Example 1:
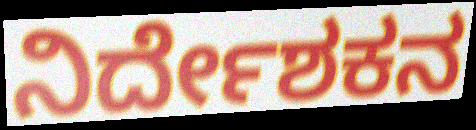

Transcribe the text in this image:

ನಿರ್ದೇಶಕನ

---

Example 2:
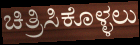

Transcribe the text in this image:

ಚಿತ್ರಿಸಿಕೊಳ್ಳಲು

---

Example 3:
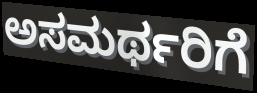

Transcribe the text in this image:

ಅಸಮರ್ಥರಿಗೆ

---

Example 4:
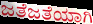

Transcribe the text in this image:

ಜತೆಜತೆಯಾಗಿ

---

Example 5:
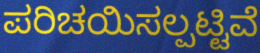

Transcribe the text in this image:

ಪರಿಚಯಿಸಲ್ಪಟ್ಟಿವೆ